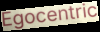
Egocentric